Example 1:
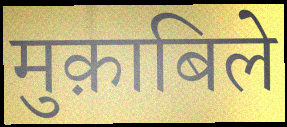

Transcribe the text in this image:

मुक़ाबिले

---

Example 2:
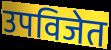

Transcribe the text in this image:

उपविजेत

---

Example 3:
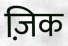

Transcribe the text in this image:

ज़िक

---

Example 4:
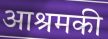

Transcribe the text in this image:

आश्रमकी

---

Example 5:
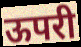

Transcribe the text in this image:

ऊपरी